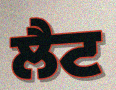
ਲੈਟ